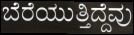
ಬೆರೆಯುತ್ತಿದ್ದೆವು